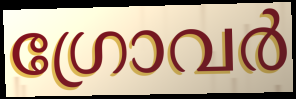
ഗ്രോവർ